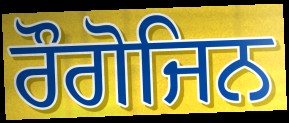
ਰੌਗੋਜਿਨ